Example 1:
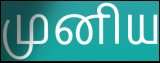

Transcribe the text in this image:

முனிய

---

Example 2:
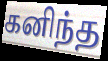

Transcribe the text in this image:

கனிந்த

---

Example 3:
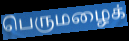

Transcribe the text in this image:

பெருமழைக்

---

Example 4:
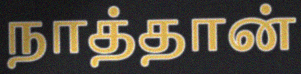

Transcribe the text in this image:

நாத்தான்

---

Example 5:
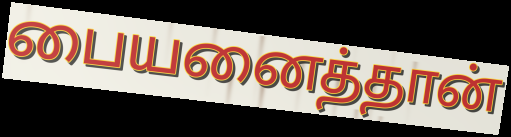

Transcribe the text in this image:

பையனைத்தான்